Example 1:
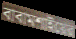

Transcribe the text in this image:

বাবামশাইয়ের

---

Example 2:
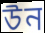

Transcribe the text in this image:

উন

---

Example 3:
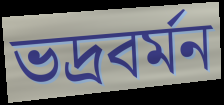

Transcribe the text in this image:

ভদ্রবর্মন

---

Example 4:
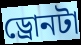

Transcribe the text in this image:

ড্রোনটা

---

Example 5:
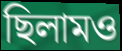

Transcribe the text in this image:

ছিলামও